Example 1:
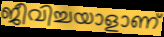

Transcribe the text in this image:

ജീവിച്ചയാളാണ്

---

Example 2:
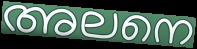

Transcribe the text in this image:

അലനെ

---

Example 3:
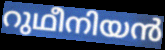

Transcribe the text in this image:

റുഥീനിയൻ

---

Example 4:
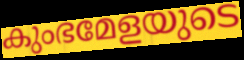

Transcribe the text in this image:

കുംഭമേളയുടെ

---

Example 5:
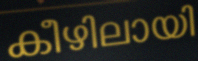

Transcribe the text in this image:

കീഴിലായി